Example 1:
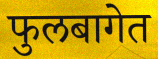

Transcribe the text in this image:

फुलबागेत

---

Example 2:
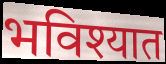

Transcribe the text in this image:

भविश्यात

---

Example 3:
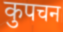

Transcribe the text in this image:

कुपचन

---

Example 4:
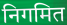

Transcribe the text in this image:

निगमित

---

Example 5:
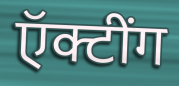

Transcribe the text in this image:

ऍक्टींग